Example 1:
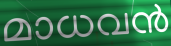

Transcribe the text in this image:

മാധവൻ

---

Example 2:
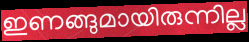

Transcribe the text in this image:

ഇണങ്ങുമായിരുന്നില്ല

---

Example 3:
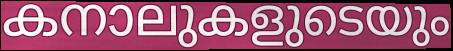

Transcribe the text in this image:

കനാലുകളുടെയും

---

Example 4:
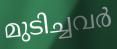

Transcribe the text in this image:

മുടിച്ചവർ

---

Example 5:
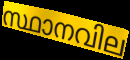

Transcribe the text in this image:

സ്ഥാനവില